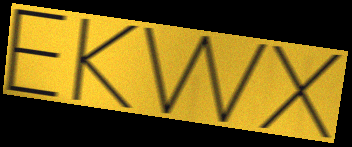
EKWX